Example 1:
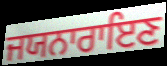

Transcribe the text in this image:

ਜਯਨਾਰਾਇਣ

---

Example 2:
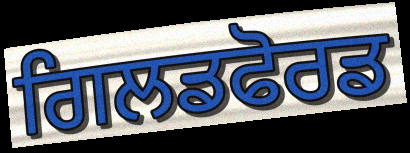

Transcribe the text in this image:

ਗਿਲਡਫੋਰਡ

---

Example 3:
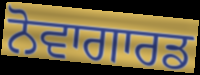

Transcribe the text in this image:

ਨੋਵਾਗਾਰਡ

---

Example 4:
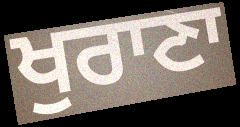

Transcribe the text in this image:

ਖੁਰਾਣਾ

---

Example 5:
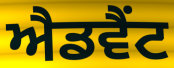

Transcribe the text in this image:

ਐਡਵੈਂਟ